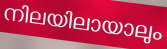
നിലയിലായാലും